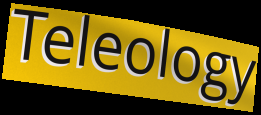
Teleology